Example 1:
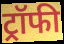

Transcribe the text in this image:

ट्रॉफी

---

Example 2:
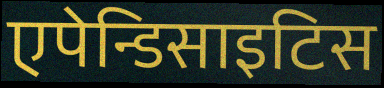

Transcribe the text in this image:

एपेन्डिसाइटिस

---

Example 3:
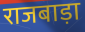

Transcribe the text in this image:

राजबाड़ा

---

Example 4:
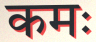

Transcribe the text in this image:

कमः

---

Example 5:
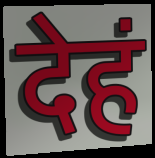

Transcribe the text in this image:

देहं